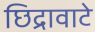
छिद्रावाटे